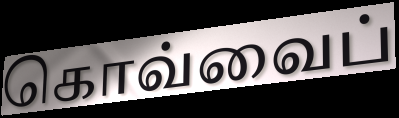
கொவ்வைப்